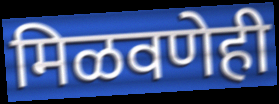
मिळवणेही